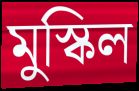
মুস্কিল